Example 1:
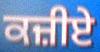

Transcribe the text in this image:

ਕਜ਼ੀਏ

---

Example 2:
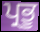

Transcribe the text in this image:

ਪ੍ਰਭੂ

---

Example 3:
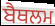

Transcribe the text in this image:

ਬੈਥਲਮ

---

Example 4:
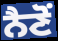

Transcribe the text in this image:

ਨੈਣੋਂ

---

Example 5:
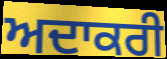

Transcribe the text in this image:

ਅਦਾਕਰੀ